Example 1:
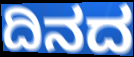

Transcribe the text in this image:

ದಿನದ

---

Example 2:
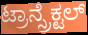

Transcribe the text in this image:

ಟ್ರಾನ್ಸ್ರೆಕ್ಟಲ್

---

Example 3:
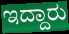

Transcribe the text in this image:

ಇದ್ದಾರು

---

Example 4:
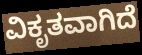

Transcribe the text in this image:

ವಿಕೃತವಾಗಿದೆ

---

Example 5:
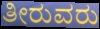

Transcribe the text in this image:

ತೀರುವರು